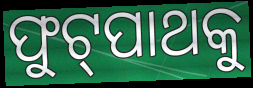
ଫୁଟ୍‌ପାଥକୁ